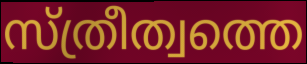
സ്ത്രീത്വത്തെ